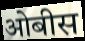
ओबीस